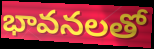
భావనలతో